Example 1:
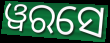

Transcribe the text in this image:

ୱରସେ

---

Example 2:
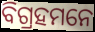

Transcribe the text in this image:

ବିଗ୍ରହମନେ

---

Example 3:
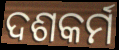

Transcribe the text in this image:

ଦଶକର୍ମ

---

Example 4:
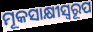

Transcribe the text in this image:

ମୂକସାକ୍ଷୀସ୍ୱରୂପ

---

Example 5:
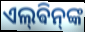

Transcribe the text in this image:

ଏଲ୍‌ଵିନ୍‌ଙ୍କ